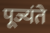
पूज्यंते